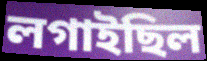
লগাইছিল